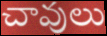
చావులు